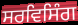
ਸਰਵਿਸਿੰਗ